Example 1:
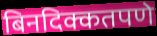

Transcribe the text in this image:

बिनदिक्कतपणे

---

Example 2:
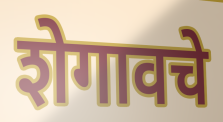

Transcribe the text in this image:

शेगावचे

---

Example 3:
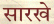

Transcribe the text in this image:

सारखे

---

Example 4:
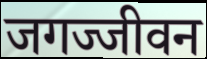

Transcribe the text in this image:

जगज्जीवन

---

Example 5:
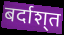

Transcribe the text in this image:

बर्दाश्त